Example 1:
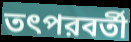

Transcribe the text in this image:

তৎপরবর্তী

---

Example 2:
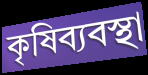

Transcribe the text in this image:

কৃষিব্যবস্থা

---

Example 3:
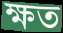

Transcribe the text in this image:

ক্ষত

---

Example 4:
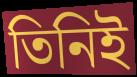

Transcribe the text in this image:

তিনিই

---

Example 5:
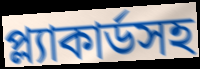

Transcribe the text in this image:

প্ল্যাকার্ডসহ